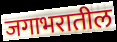
जगाभरातील